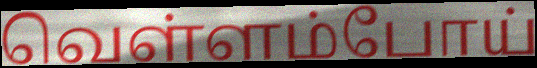
வெள்ளம்போய்